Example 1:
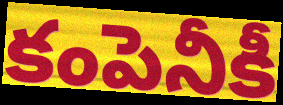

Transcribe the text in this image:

కంపెనీకీ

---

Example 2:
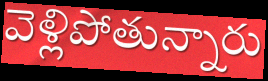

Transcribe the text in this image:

వెళ్లిపోతున్నారు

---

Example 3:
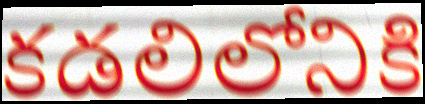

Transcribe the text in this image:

కడలిలోనికి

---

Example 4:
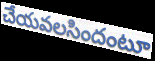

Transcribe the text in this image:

చేయవలసిందంటూ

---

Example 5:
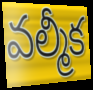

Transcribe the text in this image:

వల్మీక